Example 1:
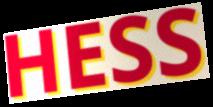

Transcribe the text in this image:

HESS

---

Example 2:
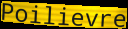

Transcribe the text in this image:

Poilievre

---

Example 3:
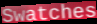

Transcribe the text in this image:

Swatches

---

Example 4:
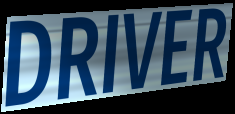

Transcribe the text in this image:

DRIVER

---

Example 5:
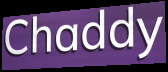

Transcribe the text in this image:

Chaddy